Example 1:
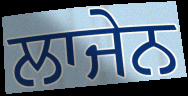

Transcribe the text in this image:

ਲਾਜੇਨ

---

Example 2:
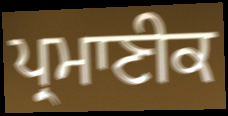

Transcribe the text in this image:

ਪ੍ਰਮਾਣੀਕ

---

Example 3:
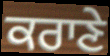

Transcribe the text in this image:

ਕਰਾਣੇ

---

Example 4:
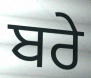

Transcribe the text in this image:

ਬਰੇ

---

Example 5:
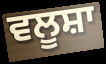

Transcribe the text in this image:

ਵਲੂਸ਼ਾ